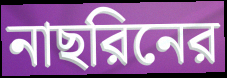
নাছরিনের